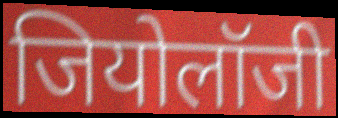
जियोलॉजी